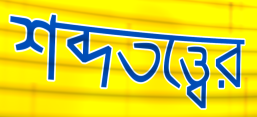
শব্দতত্ত্বের